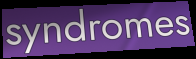
syndromes